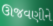
ઊજવણીને